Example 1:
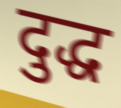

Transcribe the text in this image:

दुद्ध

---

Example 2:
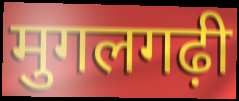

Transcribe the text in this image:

मुगलगढ़ी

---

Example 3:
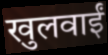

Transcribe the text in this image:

खुलवाईं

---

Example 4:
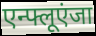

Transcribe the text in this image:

एन्फ्लूएंजा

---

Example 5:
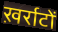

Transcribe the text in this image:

ख़र्राटों